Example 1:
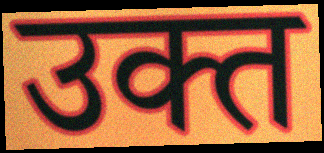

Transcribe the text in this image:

उक्त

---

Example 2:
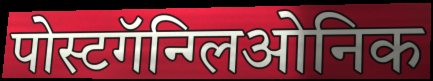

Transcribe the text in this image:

पोस्टगॅन्ग्लिओनिक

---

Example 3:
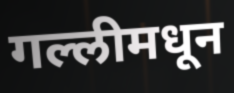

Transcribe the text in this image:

गल्लीमधून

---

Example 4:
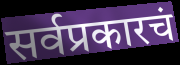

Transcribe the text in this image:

सर्वप्रकारचं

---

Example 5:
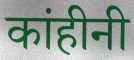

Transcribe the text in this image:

कांहीनी